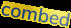
combed